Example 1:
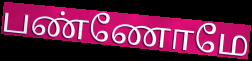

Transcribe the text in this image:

பண்ணோமே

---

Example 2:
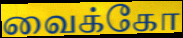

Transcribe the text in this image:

வைக்கோ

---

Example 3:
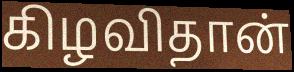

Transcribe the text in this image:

கிழவிதான்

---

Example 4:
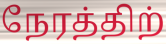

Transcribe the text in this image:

நேரத்திற்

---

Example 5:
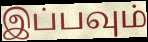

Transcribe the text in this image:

இப்பவும்